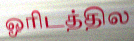
ஓரிடத்தில